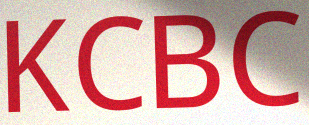
KCBC